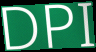
DPI